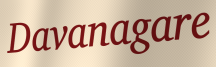
Davanagare